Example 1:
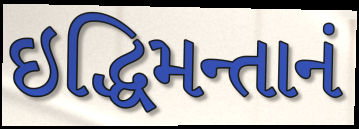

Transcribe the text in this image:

ઇદ્ધિમન્તાનં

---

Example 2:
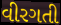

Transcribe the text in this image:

વીરગતી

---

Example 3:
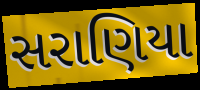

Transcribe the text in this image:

સરાણિયા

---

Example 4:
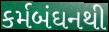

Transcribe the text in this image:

કર્મબંઘનથી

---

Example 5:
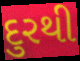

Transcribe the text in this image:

દુરથી